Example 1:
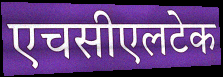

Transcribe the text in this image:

एचसीएलटेक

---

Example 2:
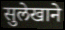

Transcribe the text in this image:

सुलेखाने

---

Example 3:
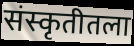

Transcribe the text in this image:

संस्कृतीतला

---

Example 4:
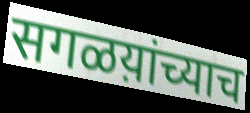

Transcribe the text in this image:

सगळय़ांच्याच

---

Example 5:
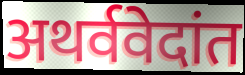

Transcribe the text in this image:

अथर्ववेदांत